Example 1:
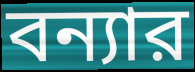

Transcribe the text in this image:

বন্যার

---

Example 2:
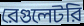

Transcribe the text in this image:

রেগুলেটরি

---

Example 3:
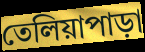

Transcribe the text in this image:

তেলিয়াপাড়া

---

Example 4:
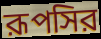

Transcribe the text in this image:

রূপসির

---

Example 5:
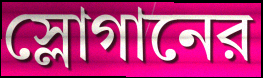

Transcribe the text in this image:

স্লোগানের